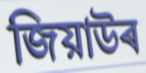
জিয়াউৰ